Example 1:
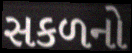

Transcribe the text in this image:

સકળનો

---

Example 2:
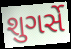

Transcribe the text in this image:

શુગર્સે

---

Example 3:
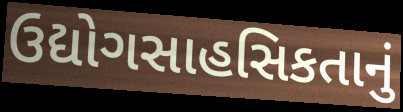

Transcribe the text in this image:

ઉદ્યોગસાહસિકતાનું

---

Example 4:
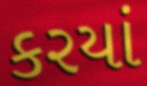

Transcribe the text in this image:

કરયાં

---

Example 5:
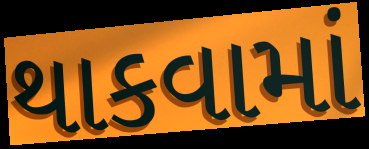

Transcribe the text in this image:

થાકવામાં